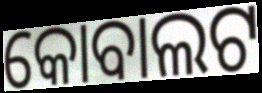
କୋବାଲଟ